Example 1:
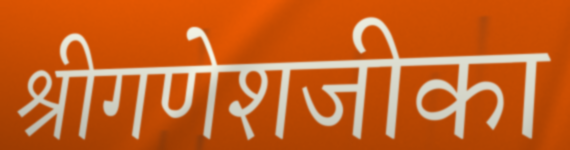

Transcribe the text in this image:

श्रीगणेशजीका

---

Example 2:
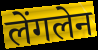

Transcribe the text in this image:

लेंगलेन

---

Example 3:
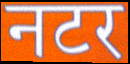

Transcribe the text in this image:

नटर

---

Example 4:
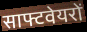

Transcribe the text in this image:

साफ्टवेयरों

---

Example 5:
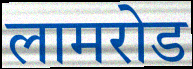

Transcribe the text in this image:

लामरोड